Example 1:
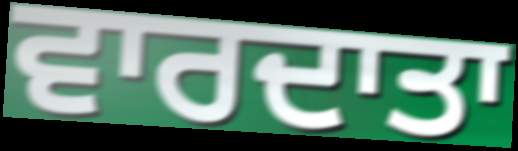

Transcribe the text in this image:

ਵਾਰਦਾਤਾ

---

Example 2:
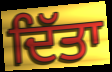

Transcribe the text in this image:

ਦਿੱਤਾ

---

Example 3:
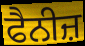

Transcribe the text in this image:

ਫੈਨੀਜ਼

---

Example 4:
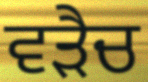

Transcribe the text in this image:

ਵੜੈਚ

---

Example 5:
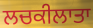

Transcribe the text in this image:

ਲਚਕੀਲਾਤਾ